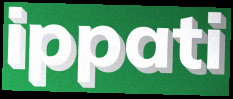
ippati